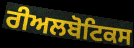
ਰੀਅਲਬੋਟਿਕਸ